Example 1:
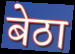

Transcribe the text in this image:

बेठा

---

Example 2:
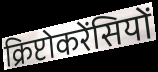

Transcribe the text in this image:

क्रिप्टोकरेंसियों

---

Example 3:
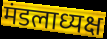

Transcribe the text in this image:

मंडलाध्यक्ष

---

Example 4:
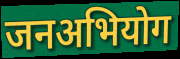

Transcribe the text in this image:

जनअभियोग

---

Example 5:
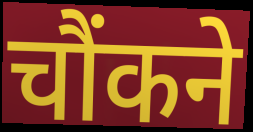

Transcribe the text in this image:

चौंकने